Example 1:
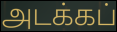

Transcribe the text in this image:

அடக்கப்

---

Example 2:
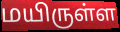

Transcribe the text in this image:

மயிருள்ள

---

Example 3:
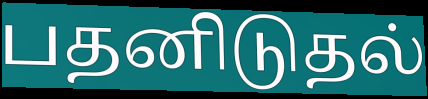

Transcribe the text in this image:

பதனிடுதல்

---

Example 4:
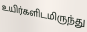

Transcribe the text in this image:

உயிர்களிடமிருந்து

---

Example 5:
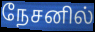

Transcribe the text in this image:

நேசனில்